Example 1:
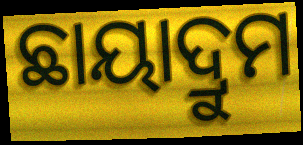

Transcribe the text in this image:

ଛାୟାଦ୍ରୁମ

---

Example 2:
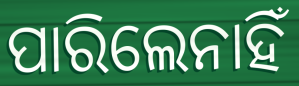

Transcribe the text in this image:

ପାରିଲେନାହିଁ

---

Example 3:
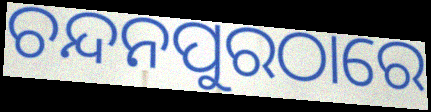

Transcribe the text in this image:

ଚନ୍ଦନପୁରଠାରେ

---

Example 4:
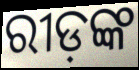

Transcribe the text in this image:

ରୀଡ଼ଙ୍କ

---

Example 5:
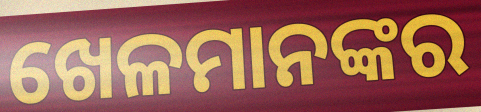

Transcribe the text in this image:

ଖେଳମାନଙ୍କର